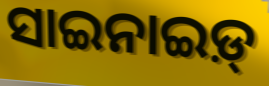
ସାଇନାଇଡ଼୍